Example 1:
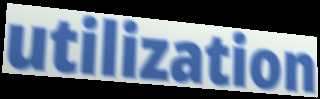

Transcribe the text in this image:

utilization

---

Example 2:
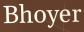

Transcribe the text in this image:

Bhoyer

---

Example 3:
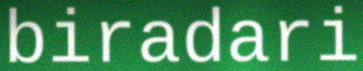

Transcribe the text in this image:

biradari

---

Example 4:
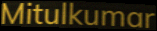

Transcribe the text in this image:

Mitulkumar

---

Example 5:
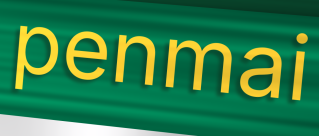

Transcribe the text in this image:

penmai